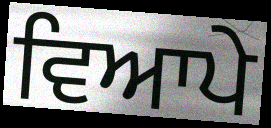
ਵਿਆਪੇ